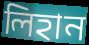
লিহান